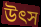
উৎস